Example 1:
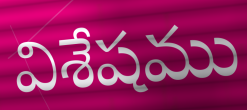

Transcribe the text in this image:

విశేషము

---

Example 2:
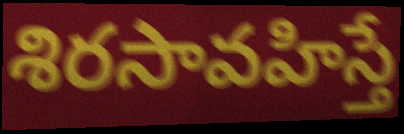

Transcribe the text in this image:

శిరసావహిస్తే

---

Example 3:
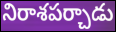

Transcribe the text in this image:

నిరాశపర్చాడు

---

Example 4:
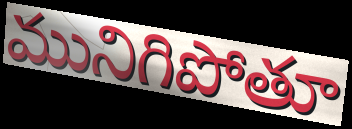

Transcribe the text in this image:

మునిగిపోతూ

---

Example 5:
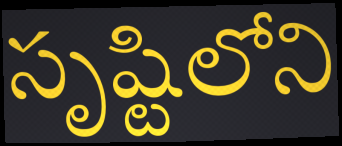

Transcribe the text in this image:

సృష్టిలోని